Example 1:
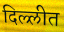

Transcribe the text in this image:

दिल्लीत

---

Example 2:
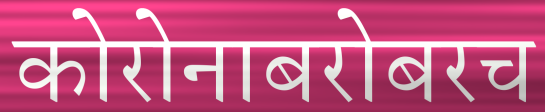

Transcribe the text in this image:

कोरोनाबरोबरच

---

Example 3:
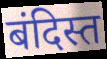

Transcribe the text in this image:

बंदिस्त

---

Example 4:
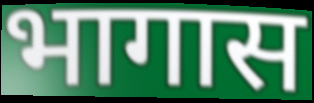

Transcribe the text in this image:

भागास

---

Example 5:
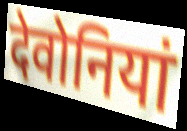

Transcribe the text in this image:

देवोनियां